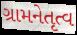
ગ્રામનેતૃત્વ